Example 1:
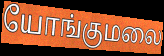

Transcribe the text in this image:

யோங்குமலை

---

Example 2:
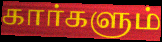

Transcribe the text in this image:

கார்களும்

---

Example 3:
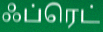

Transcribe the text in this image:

ஃப்ரெட்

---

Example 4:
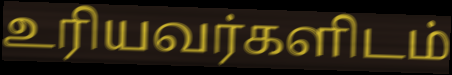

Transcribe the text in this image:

உரியவர்களிடம்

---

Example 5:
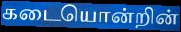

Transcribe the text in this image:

கடையொன்றின்